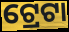
ଟ୍ରେଟା